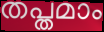
തപ്തമാം